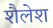
शैलेश